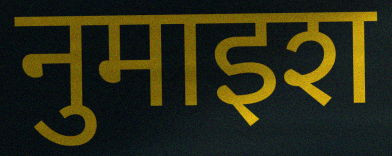
नुमाइश